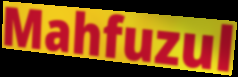
Mahfuzul